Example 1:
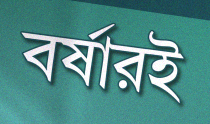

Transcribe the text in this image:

বর্ষারই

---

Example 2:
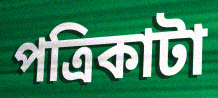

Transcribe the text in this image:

পত্রিকাটা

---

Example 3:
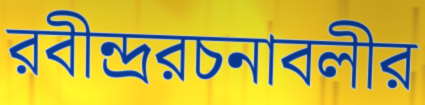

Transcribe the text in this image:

রবীন্দ্ররচনাবলীর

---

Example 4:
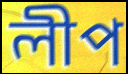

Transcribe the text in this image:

লীপ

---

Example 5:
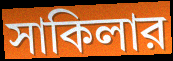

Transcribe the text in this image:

সাকিলার